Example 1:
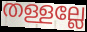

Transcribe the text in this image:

തള്ളല്ലേ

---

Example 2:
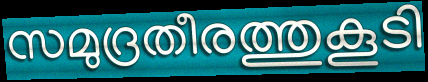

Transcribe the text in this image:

സമുദ്രതീരത്തുകൂടി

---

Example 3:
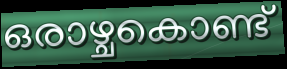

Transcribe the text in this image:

ഒരാഴ്ചകൊണ്ട്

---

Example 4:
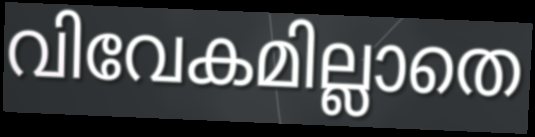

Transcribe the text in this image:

വിവേകമില്ലാതെ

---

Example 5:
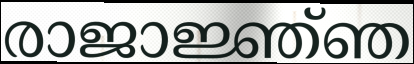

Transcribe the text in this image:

രാജാജ്ഞ്ഞ